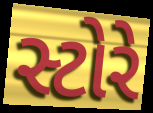
સ્ટોરે